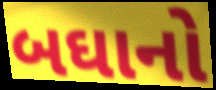
બઘાનો